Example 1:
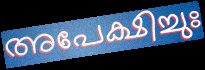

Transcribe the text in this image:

അപേക്ഷിച്ചുഃ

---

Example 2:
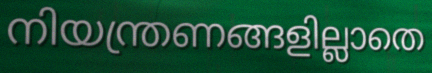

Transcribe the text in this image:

നിയന്ത്രണങ്ങളില്ലാതെ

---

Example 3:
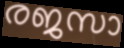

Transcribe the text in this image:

രജസാ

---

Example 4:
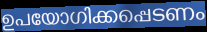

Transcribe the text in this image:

ഉപയോഗിക്കപ്പെടണം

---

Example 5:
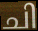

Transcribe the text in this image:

ചി